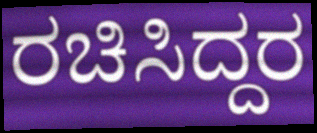
ರಚಿಸಿದ್ದರ